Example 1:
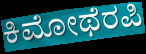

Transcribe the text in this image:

ಕಿಮೋಥೆರಪಿ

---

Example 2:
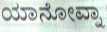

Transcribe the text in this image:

ಯಾನೋವ್ನಾ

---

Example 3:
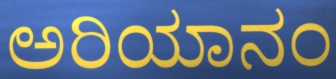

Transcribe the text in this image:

ಅರಿಯಾನಂ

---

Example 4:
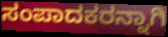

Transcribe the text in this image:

ಸಂಪಾದಕರನ್ನಾಗಿ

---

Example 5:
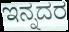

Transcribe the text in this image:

ಇನ್ನದರ